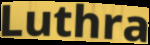
Luthra